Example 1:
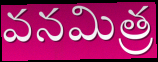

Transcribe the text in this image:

వనమిత్ర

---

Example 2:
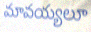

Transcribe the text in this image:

మావయ్యలూ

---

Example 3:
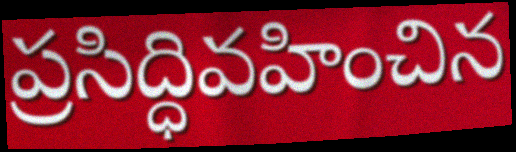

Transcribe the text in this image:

ప్రసిద్ధివహించిన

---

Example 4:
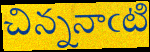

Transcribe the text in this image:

చిన్ననాఁటి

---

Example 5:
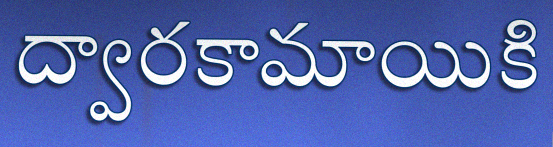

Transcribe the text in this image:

ద్వారకామాయికి